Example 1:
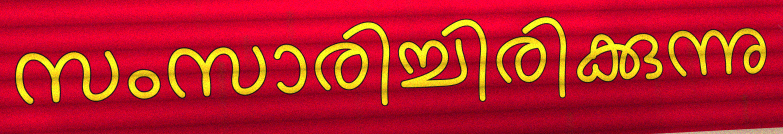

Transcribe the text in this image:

സംസാരിച്ചിരിക്കുന്നു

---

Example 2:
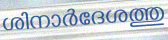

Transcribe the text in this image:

ശിനാർദേശത്തു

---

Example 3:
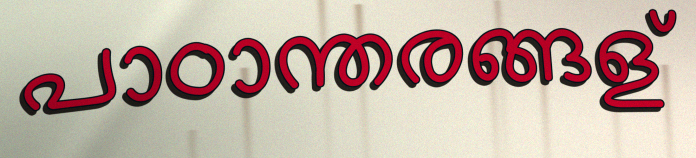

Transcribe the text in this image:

പാഠാന്തരങ്ങള്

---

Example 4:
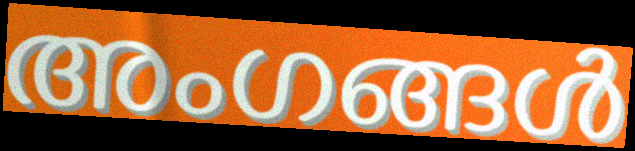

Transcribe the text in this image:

അംഗങ്ങൾ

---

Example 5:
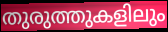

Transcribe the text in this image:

തുരുത്തുകളിലും